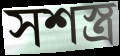
সশস্ত্ৰ